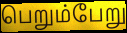
பெறும்பேறு